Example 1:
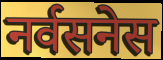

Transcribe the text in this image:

नर्वसनेस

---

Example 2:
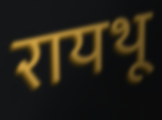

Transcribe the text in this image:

रायथू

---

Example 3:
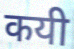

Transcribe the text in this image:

कयी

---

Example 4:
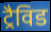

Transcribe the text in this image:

ट्रैविड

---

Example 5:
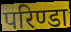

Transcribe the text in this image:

परिण्डा